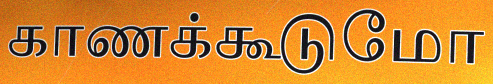
காணக்கூடுமோ